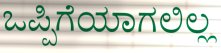
ಒಪ್ಪಿಗೆಯಾಗಲಿಲ್ಲ